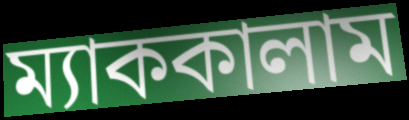
ম্যাককালাম